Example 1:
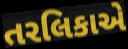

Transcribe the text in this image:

તરલિકાએ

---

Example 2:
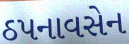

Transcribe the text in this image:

ઠપનાવસેન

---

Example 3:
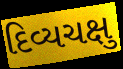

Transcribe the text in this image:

દિવ્યચક્ષુ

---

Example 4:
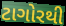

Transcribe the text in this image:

ટાગોરથી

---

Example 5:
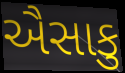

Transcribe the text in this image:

ઐસાકુ